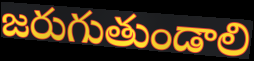
జరుగుతుండాలి